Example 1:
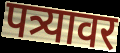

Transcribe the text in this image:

पत्र्यावर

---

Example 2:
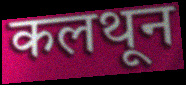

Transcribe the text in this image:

कलथून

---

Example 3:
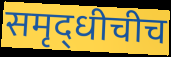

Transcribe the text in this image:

समृद्धीचीच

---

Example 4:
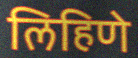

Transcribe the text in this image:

लिहिणे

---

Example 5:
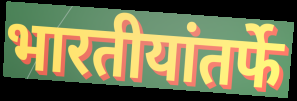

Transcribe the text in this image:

भारतीयांतर्फे